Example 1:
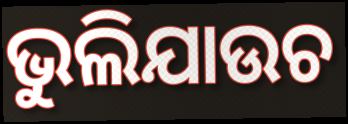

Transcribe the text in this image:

ଭୁଲିଯାଉଚ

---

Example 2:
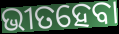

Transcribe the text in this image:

ଭୀତହେବା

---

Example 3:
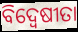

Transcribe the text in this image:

ବିଦ୍ଵେଷୀତା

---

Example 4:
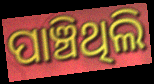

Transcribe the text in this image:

ପାଞ୍ଚିଥିଲି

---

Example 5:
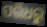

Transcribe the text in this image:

ପରିଧରୁ